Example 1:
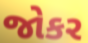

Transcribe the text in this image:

જોકર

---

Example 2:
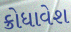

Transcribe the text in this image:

ક્રોધાવેશ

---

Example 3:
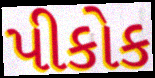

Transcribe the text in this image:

પીકોક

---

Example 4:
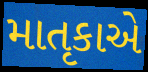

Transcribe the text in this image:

માતૃકાએ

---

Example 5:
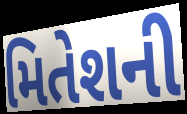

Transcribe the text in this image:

મિતેશની